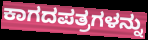
ಕಾಗದಪತ್ರಗಳನ್ನು